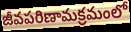
జీవపరిణామక్రమంలో